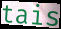
tais